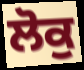
ਲੋਕੁ